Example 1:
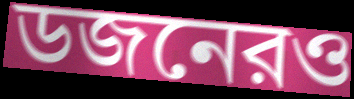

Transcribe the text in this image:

ডজনেরও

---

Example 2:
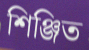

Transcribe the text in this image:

শিঞ্জিত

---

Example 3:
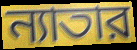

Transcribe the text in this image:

ন্যাতার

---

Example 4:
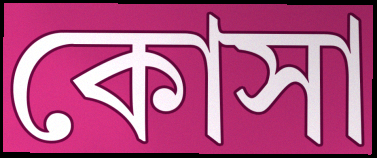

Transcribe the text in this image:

কোসা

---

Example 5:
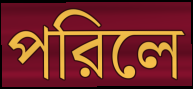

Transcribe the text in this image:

পরিলে